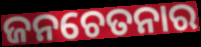
ଜନଚେତନାର